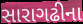
સારાગઢીના